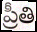
ప్రీతి